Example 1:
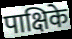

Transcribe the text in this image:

पाक्षिके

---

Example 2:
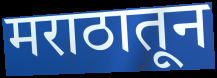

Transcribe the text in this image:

मराठातून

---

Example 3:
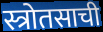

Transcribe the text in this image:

स्त्रोतसाची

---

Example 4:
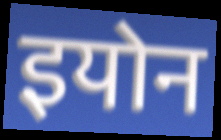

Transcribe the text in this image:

इयोन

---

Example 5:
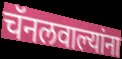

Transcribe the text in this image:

चॅनलवाल्यांना